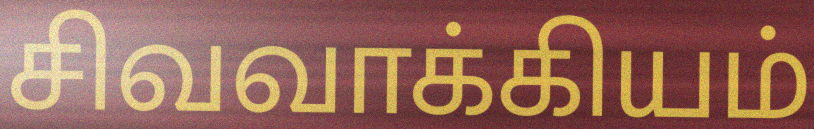
சிவவாக்கியம்